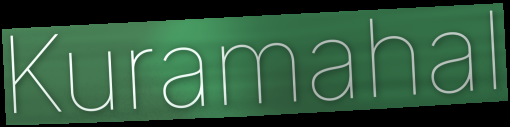
Kuramahal